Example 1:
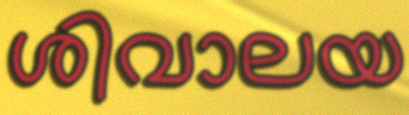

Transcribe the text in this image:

ശിവാലയ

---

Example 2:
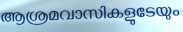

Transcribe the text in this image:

ആശ്രമവാസികളുടേയും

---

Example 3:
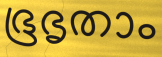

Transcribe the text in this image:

ഭൂഭൃതാം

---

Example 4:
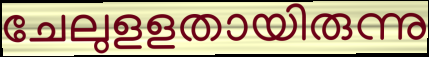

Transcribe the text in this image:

ചേലുളളതായിരുന്നു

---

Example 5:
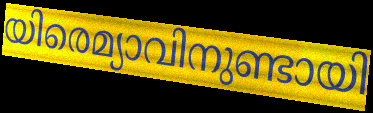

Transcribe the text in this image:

യിരെമ്യാവിനുണ്ടായി